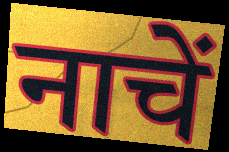
नाचें